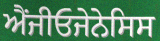
ਐਂਜੀਓਜੇਨੇਸਿਸ